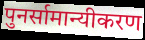
पुनर्सामान्यीकरण